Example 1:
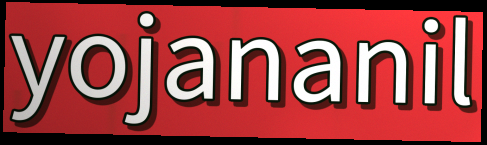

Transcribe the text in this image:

yojananil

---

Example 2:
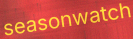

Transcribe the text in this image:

seasonwatch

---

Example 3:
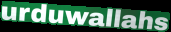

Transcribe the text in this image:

urduwallahs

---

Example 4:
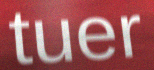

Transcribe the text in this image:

tuer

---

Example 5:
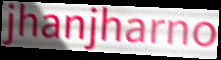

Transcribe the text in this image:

jhanjharno